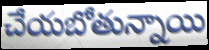
చేయబోతున్నాయి